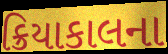
ક્રિયાકાલના